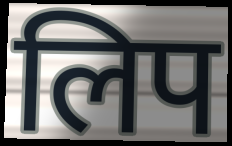
लिप